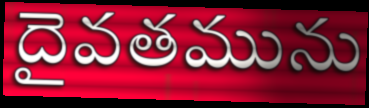
దైవతమును